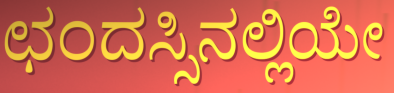
ಛಂದಸ್ಸಿನಲ್ಲಿಯೇ